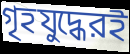
গৃহযুদ্ধেরই